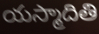
యస్మాదితి